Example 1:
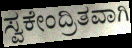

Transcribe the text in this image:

ಸ್ವಕೇಂದ್ರಿತವಾಗಿ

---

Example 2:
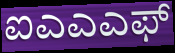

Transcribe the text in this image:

ಐಎಎಎಫ್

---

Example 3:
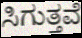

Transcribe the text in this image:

ಸಿಗುತ್ತವೆ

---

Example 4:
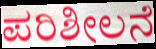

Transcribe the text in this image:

ಪರಿಶೀಲನೆ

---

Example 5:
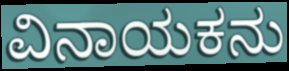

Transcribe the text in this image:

ವಿನಾಯಕನು